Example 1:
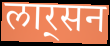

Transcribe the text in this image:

लार्सन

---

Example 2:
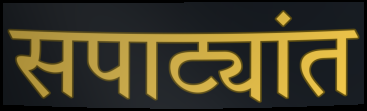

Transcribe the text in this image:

सपाट्यांत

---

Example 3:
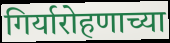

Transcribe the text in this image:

गिर्यारोहणाच्या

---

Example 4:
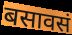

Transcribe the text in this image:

बसावसं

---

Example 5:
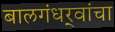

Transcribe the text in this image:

बालगंधर्वांचा